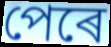
পেৰে